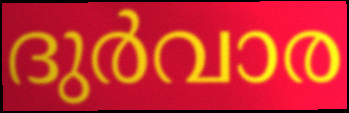
ദുർവാര